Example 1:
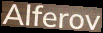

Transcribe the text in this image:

Alferov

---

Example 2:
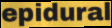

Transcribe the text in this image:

epidural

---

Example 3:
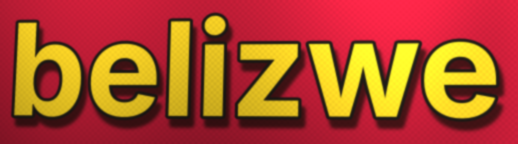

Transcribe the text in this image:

belizwe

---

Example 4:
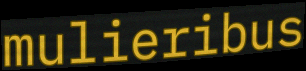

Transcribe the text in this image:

mulieribus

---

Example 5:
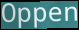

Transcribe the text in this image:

Oppen